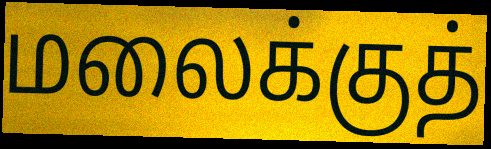
மலைக்குத்